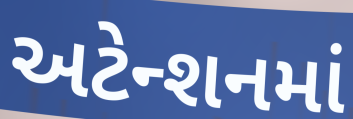
અટેન્શનમાં